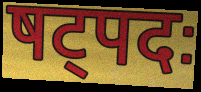
षट्पदः